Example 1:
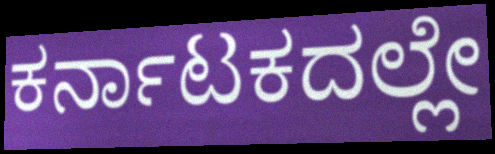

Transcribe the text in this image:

ಕರ್ನಾಟಕದಲ್ಲೇ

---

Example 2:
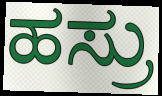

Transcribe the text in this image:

ಹಸ್ರು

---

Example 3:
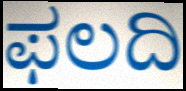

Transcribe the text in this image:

ಫಲದಿ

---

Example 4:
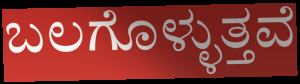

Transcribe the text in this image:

ಬಲಗೊಳ್ಳುತ್ತವೆ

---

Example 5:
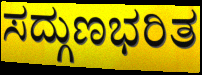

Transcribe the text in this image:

ಸದ್ಗುಣಭರಿತ